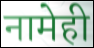
नामेही